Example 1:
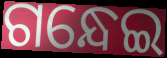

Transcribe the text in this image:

ଗନ୍ଧେଇ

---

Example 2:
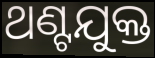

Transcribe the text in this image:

ଥଣ୍ଟଯୁକ୍ତ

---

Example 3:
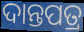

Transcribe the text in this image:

ଦାନ୍ତପତ୍ର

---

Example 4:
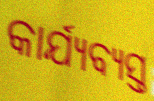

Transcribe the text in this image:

କାର୍ଯ୍ୟବ୍ୟସ୍ତ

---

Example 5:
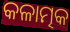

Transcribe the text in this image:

କଳାତ୍ମକ